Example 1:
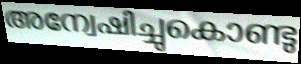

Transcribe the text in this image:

അന്വേഷിച്ചുകൊണ്ടു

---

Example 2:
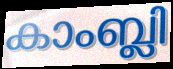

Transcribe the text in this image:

കാംബ്ലി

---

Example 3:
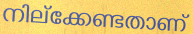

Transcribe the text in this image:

നില്ക്കേണ്ടതാണ്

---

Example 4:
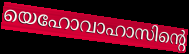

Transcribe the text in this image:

യെഹോവാഹാസിന്റെ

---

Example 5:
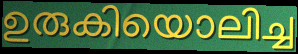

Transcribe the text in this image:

ഉരുകിയൊലിച്ച